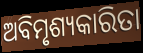
ଅବିମୃଶ୍ୟକାରିତା